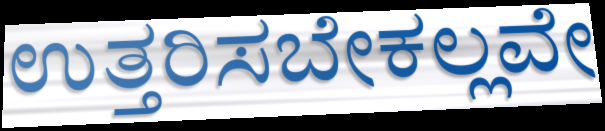
ಉತ್ತರಿಸಬೇಕಲ್ಲವೇ